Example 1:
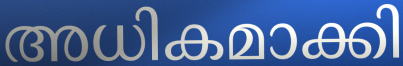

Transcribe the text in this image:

അധികമാക്കി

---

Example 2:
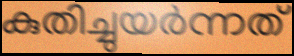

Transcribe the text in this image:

കുതിച്ചുയർന്നത്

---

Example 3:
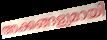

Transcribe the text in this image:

അക്കങ്ങളുമായി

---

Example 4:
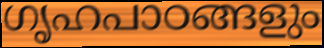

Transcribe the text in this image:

ഗൃഹപാഠങ്ങളും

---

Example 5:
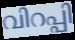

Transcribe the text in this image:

വിറപ്പി